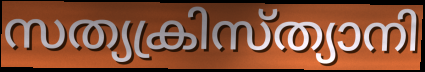
സത്യക്രിസ്ത്യാനി